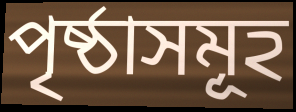
পৃষ্ঠাসমূহ